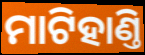
ମାଟିହାଣ୍ତି